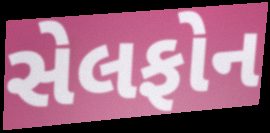
સેલફોન